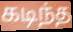
கடிந்த